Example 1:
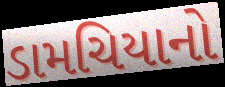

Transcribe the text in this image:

ડામચિયાનો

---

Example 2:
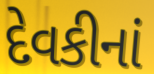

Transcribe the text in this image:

દેવકીનાં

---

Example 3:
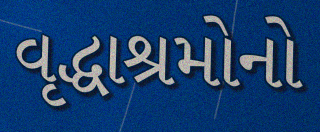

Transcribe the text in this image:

વૃદ્ધાશ્રમોનો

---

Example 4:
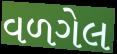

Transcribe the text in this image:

વળગેલ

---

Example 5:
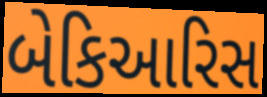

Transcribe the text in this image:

બેકિઆરિસ